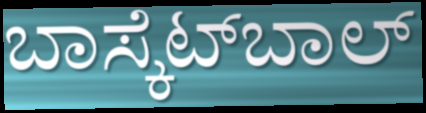
ಬಾಸ್ಕೆಟ್‍ಬಾಲ್